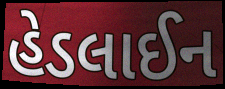
હેડલાઈન